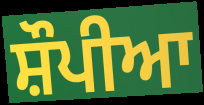
ਸ਼ੌਪੀਆ